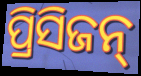
ପ୍ରିସିଜନ୍